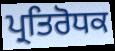
ਪ੍ਰਤਿਰੋਧਕ